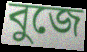
বুজে